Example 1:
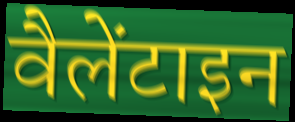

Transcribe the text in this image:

वैलेंटाइन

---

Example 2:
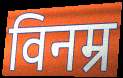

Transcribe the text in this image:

विनम्र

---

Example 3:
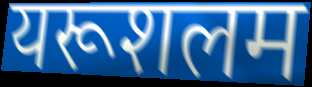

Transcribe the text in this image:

यरूशलम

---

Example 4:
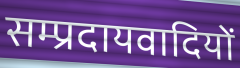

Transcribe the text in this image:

सम्प्रदायवादियों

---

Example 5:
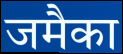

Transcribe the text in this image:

जमैका